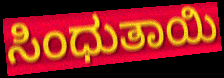
ಸಿಂಧುತಾಯಿ